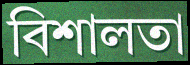
বিশালতা